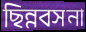
ছিন্নবসনা